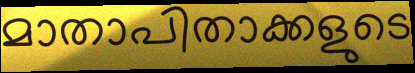
മാതാപിതാക്കളുടെ